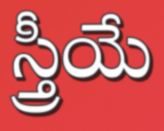
స్త్రీయే